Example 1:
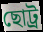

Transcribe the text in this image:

ছোট্র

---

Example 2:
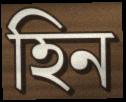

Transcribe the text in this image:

হিন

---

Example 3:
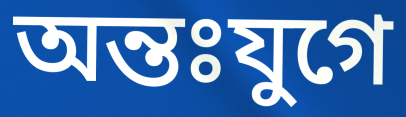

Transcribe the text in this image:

অন্তঃযুগে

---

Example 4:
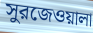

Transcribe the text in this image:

সুরজেওয়ালা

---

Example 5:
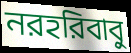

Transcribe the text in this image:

নরহরিবাবু